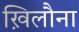
ख़िलौना